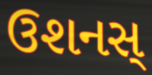
ઉશનસ્